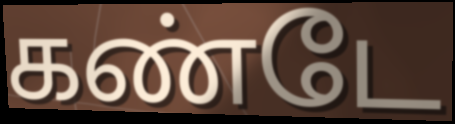
கண்டே